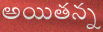
అయితన్న